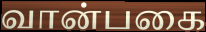
வான்பகை